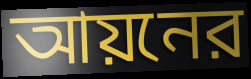
আয়নের